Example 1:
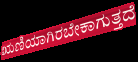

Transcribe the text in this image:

ಋಣಿಯಾಗಿರಬೇಕಾಗುತ್ತದೆ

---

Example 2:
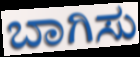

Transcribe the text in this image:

ಬಾಗಿಸು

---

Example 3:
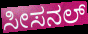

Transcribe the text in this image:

ಸೀಸನಲ್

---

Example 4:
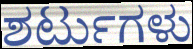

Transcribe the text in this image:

ಶರ್ಟುಗಳು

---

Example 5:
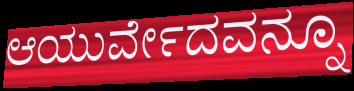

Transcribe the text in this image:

ಆಯುರ್ವೇದವನ್ನೂ